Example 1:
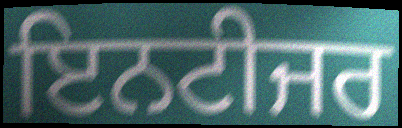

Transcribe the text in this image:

ਇਨਟੀਜਰ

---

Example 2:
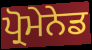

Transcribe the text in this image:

ਪ੍ਰੋਮੇਨੇਡ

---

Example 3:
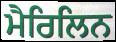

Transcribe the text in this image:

ਮੈਰਿਲਿਨ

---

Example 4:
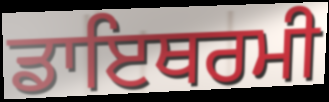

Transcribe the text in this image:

ਡਾਇਥਰਮੀ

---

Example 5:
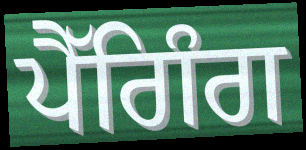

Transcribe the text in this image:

ਪੈੱਗਿੰਗ